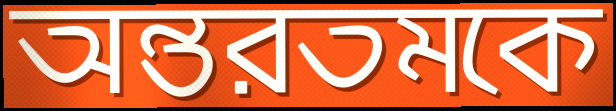
অন্তরতমকে